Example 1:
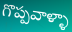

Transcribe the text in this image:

గొప్పవాళ్ళా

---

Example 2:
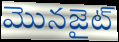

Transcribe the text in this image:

మొనజైట్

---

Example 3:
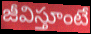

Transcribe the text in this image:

జీవిస్తూంటే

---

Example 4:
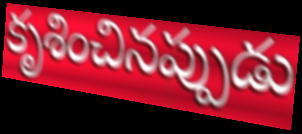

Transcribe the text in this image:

కృశించినప్పుడు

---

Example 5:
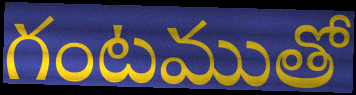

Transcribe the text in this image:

గంటముతో